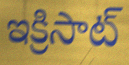
ఇక్రిసాట్